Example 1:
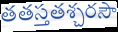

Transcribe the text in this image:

తతస్తతశ్చరసౌ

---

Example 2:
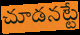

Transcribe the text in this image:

చూడనట్టే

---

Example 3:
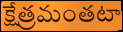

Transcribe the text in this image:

క్షేత్రమంతటా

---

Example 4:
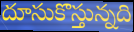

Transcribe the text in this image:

దూసుకొస్తున్నది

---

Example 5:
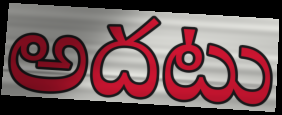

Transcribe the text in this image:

అదటు